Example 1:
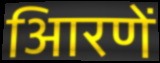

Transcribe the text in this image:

आिरणें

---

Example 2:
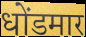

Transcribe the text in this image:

धोंडमार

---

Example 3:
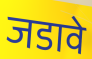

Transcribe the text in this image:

जडावे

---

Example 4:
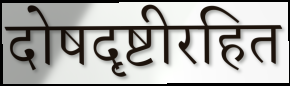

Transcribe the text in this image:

दोषदृष्टीरहित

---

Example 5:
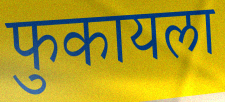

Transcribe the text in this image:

फुकायला